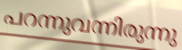
പറന്നുവന്നിരുന്നു